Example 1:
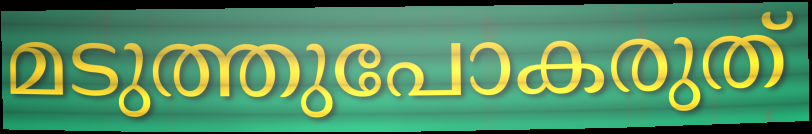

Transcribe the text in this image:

മടുത്തുപോകരുത്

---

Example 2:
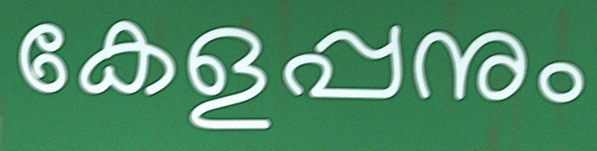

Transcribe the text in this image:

കേളപ്പനും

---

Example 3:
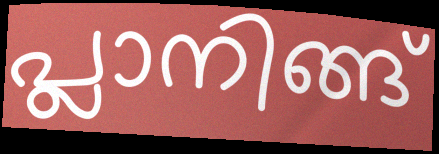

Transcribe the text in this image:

പ്ലാനിങ്ങ്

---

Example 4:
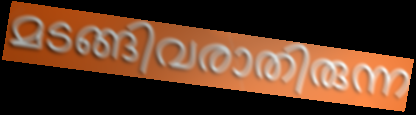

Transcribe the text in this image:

മടങ്ങിവരാതിരുന്ന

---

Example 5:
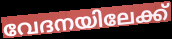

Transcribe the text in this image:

വേദനയിലേക്ക്